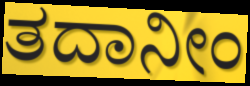
ತದಾನೀಂ